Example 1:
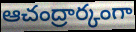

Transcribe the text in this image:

ఆచంద్రార్కంగా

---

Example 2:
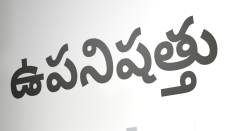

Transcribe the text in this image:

ఉపనిషత్తు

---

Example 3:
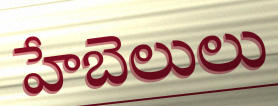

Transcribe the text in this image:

హేబెలులు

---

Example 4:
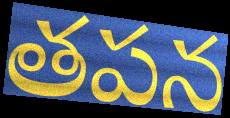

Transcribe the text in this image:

తపన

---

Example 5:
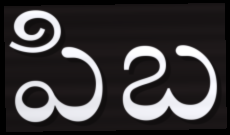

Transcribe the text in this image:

పిబ